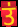
उ॑